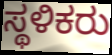
ಸ್ಥಳಿಕರು